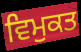
ਵਿਮੁਕਤ